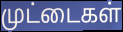
முட்டைகள்